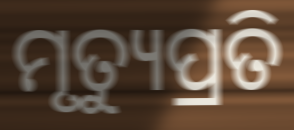
ମୃତ୍ୟୁପ୍ରତି